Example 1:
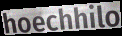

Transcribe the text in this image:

hoechhilo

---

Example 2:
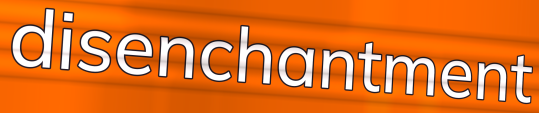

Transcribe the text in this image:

disenchantment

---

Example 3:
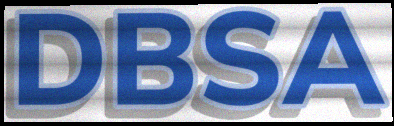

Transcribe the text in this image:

DBSA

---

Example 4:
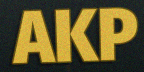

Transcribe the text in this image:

AKP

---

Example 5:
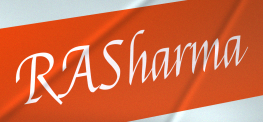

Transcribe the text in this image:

RASharma